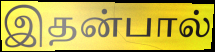
இதன்பால்